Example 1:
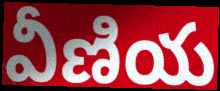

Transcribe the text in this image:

వీణియ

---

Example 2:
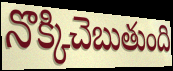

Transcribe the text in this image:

నొక్కిచెబుతుంది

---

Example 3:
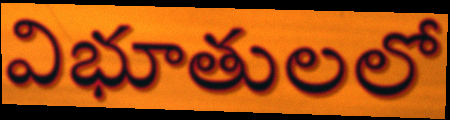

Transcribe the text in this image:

విభూతులలో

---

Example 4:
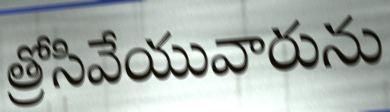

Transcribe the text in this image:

త్రోసివేయువారును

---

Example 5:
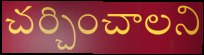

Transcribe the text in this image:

చర్చించాలని